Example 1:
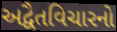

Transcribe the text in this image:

અદ્વૈતવિચારનો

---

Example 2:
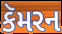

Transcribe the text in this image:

કૅમરન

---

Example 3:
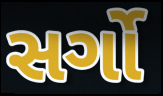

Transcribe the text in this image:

સર્ગો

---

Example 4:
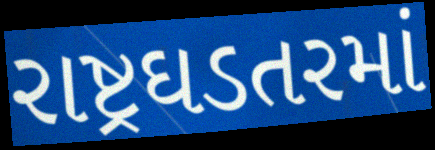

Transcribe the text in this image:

રાષ્ટ્રઘડતરમાં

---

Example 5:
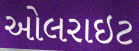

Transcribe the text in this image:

ઓલરાઇટ